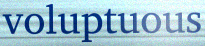
voluptuous